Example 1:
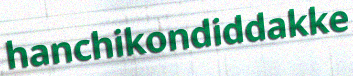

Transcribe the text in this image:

hanchikondiddakke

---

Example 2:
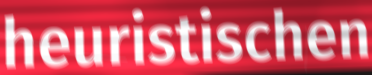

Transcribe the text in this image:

heuristischen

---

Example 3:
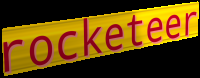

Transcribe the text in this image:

rocketeer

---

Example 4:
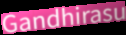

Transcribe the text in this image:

Gandhirasu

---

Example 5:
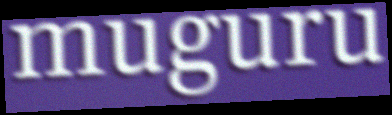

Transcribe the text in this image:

muguru